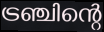
ട്രഞ്ചിന്റെ